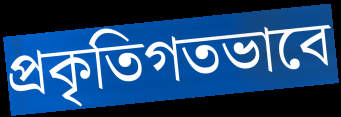
প্রকৃতিগতভাবে